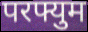
परफ्युम